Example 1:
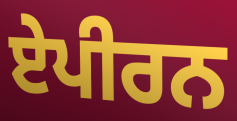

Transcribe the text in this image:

ਏਪੀਰਨ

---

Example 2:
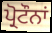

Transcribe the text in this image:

ਪ੍ਰੋਟੌਨਾਂ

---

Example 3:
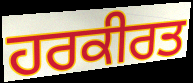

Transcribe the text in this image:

ਹਰਕੀਰਤ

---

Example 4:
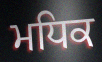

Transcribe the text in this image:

ਮਧਿਕ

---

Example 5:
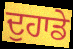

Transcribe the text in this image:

ਦੁਹਾਡੇ